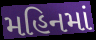
મહિનમાં